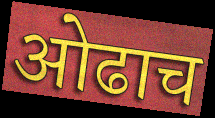
ओढाच